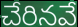
చేరినవే